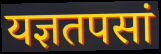
यज्ञतपसां